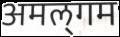
अमल्गम